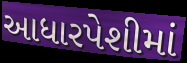
આધારપેશીમાં